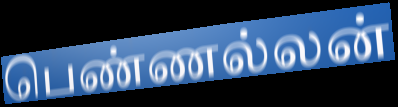
பெண்ணல்லன்